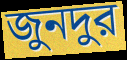
জুনদুর